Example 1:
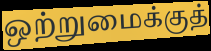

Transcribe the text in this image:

ஒற்றுமைக்குத்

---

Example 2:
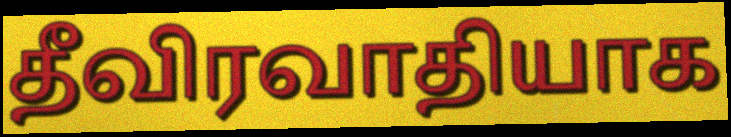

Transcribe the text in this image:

தீவிரவாதியாக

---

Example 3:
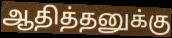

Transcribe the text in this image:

ஆதித்தனுக்கு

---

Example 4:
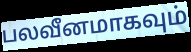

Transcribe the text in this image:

பலவீனமாகவும்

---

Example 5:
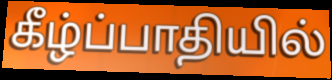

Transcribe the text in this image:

கீழ்ப்பாதியில்